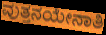
ವುತ್ತನಯೇನಾತಿ